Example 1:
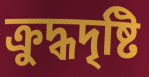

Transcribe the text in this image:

ক্রুদ্ধদৃষ্টি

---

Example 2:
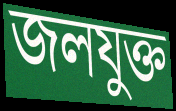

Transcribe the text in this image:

জলযুক্ত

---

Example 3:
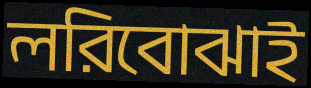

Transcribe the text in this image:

লরিবোঝাই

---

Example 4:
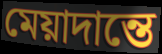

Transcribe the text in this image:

মেয়াদান্তে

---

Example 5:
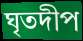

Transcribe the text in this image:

ঘৃতদীপ